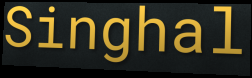
Singhal